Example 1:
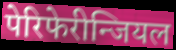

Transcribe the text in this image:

पेरिफेरीन्जियल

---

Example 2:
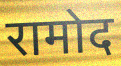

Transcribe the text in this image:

रामोद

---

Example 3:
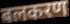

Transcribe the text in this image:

बलकरण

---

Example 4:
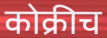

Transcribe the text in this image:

कोक्रीच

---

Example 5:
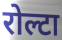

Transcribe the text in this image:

रोल्टा